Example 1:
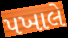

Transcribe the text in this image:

પખાલે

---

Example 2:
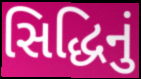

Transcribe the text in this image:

સિદ્ધિનું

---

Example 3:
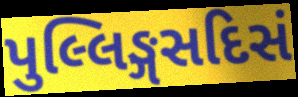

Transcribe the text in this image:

પુલ્લિઙ્ગસદિસં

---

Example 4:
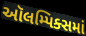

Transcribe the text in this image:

ઑલમ્પિક્સમાં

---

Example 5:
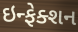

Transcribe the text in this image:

ઇન્ફેક્શન